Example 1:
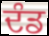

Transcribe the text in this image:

ਦੰਡ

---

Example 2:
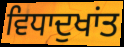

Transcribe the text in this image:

ਵਿਧਾਦੁਖਾਂਤ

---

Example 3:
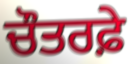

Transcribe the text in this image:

ਚੌਤਰਫ਼ੇ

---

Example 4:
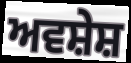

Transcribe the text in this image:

ਅਵਸ਼ੇਸ਼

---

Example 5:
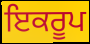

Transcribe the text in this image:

ਇਕਰੂਪ